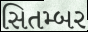
સિતમ્બર